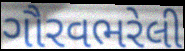
ગૌરવભરેલી